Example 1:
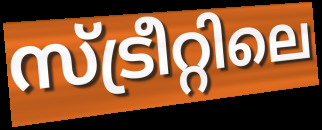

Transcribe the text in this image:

സ്ട്രീറ്റിലെ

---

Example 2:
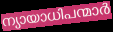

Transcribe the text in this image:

ന്യായാധിപന്മാർ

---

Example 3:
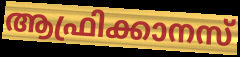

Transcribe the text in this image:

ആഫ്രിക്കാനസ്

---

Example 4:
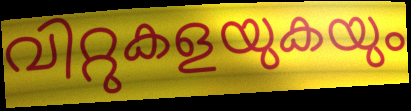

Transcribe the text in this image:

വിറ്റുകളയുകയും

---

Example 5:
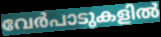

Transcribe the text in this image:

വേർപാടുകളിൽ